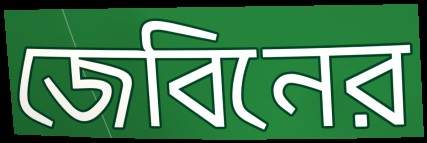
জেবিনের